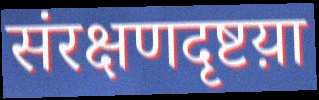
संरक्षणदृष्टय़ा